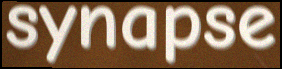
synapse